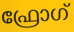
ഫ്രോഗ്